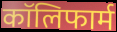
कॉलिफार्म